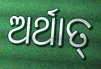
ଅର୍ଥାତ୍